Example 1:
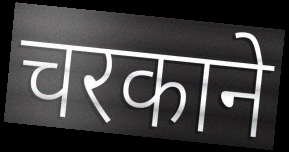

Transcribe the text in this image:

चरकाने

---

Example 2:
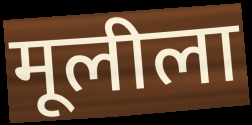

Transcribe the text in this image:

मूलीला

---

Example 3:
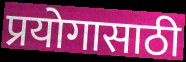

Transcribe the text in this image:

प्रयोगासाठी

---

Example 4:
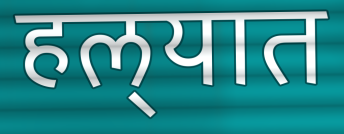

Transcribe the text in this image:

हल्यात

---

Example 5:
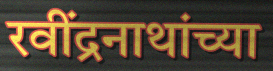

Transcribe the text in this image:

रवींद्रनाथांच्या